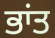
ਭਾਂਤ